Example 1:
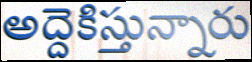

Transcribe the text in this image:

అద్దెకిస్తున్నారు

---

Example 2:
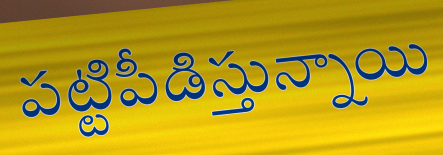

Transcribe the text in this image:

పట్టిపీడిస్తున్నాయి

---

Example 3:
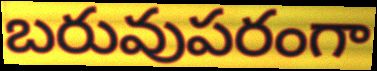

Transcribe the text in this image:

బరువుపరంగా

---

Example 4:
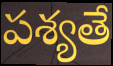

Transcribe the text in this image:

పశ్యతే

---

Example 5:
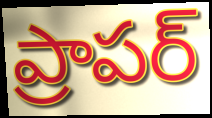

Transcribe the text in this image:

ప్రాపర్